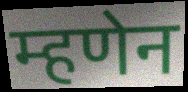
म्हणेन